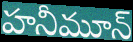
హనీమూన్